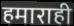
हमाराही